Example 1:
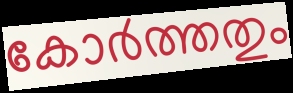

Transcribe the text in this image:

കോർത്തതും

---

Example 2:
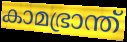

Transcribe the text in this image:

കാമഭ്രാന്ത്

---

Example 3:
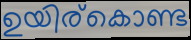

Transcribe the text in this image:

ഉയിര്കൊണ്ട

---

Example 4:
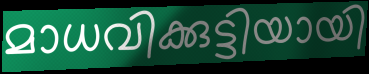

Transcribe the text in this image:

മാധവിക്കുട്ടിയായി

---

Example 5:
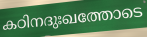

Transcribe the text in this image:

കഠിനദുഃഖത്തോടെ